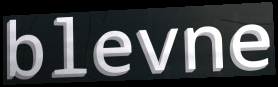
blevne